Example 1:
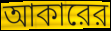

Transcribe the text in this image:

আকারের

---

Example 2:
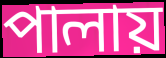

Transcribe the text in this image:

পালায়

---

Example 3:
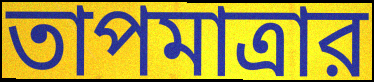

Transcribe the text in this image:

তাপমাত্রার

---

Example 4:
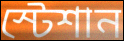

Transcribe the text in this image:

স্টেশান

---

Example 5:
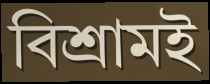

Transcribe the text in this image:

বিশ্রামই